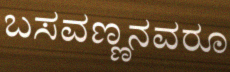
ಬಸವಣ್ಣನವರೂ